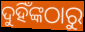
ଦୁହିଁଙ୍କଠାରୁ